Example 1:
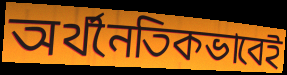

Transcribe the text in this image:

অর্থনৈতিকভাবেই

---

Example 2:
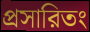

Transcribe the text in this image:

প্রসারিতং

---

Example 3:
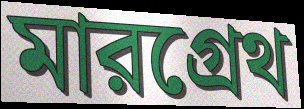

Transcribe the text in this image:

মারগ্রেথ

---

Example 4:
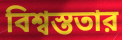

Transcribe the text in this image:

বিশ্বস্ততার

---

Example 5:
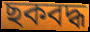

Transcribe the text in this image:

ছকবদ্ধ